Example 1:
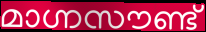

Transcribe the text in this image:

മാഗ്നസൗണ്ട്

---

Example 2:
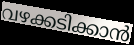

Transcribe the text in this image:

വഴക്കടിക്കാൻ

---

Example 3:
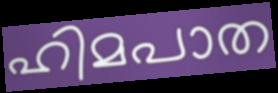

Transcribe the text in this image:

ഹിമപാത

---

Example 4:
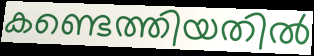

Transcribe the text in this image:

കണ്ടെത്തിയതിൽ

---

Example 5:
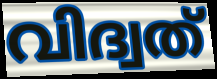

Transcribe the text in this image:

വിദ്വത്